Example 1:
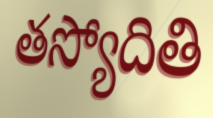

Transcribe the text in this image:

తస్యోదితి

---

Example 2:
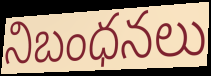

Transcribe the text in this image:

నిబంధనలు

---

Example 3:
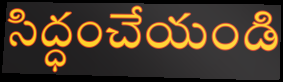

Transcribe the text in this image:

సిద్ధంచేయండి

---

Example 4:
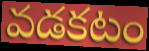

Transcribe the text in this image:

వడకటం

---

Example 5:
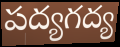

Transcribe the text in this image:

పద్యగద్య